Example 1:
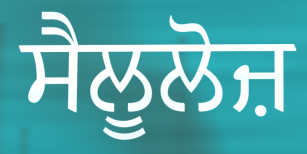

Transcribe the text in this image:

ਸੈਲੂਲੋਜ਼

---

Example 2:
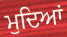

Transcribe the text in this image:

ਮੁਦਿਆਂ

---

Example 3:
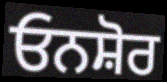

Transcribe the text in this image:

ਓਨਸ਼ੋਰ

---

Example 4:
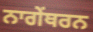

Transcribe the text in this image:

ਨਾਗੇਂਥਰਨ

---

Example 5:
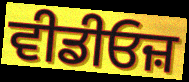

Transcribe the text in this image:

ਵੀਡੀਓਜ਼